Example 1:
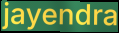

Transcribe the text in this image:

jayendra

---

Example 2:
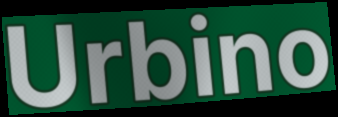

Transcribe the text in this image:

Urbino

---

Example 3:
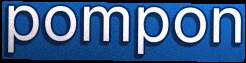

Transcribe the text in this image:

pompon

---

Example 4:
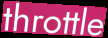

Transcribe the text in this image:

throttle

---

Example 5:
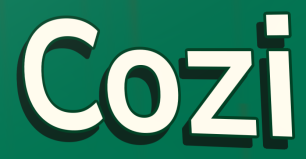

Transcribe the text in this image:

Cozi